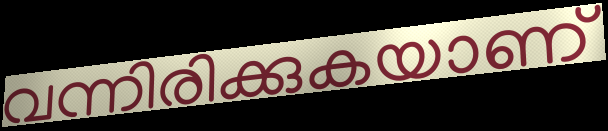
വന്നിരിക്കുകയാണ്